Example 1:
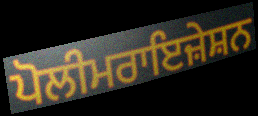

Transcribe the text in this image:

ਪੋਲੀਮਰਾਇਜ਼ੇਸ਼ਨ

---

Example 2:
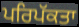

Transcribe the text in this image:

ਪਰਿਪੱਕਤਾ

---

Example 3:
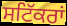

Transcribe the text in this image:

ਸਟਿੱਕਰਾਂ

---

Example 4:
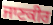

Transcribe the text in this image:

ਜਾਣਕੀਰ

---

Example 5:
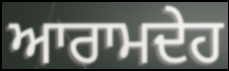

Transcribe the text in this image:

ਆਰਾਮਦੇਹ